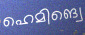
ഹെമിങ്വെ